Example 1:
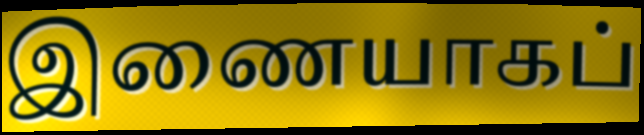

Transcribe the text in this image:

இணையாகப்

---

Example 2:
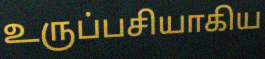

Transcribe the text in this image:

உருப்பசியாகிய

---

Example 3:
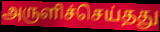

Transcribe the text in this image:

அருளிச்செய்தது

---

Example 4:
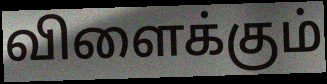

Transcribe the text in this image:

விளைக்கும்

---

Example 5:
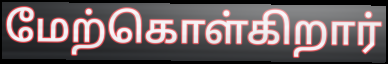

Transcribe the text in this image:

மேற்கொள்கிறார்